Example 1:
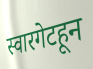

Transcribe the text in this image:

स्वारगेटहून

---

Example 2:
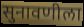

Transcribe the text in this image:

सुनावणीला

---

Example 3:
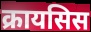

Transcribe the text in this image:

क्रायसिस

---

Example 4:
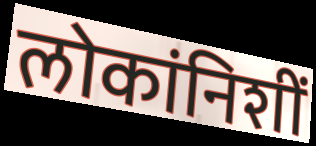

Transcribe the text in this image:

लोकांनिशीं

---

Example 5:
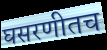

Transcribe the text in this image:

घसरणीतच